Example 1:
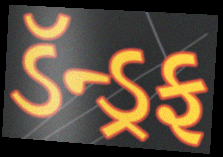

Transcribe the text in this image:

ડૅન્ડ્રફ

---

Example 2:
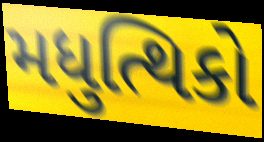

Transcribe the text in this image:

મધુત્થિકો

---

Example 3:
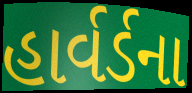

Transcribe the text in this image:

હાર્વર્ડના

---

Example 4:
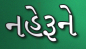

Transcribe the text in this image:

નહેરૂને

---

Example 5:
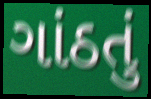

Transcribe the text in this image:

ગાંઠતું